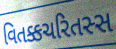
વિતક્કચરિતસ્સ